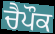
ਚੈਪੌਕ